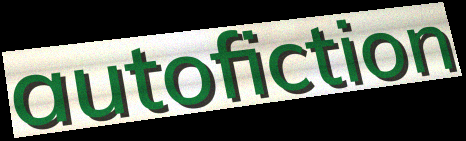
autofiction